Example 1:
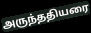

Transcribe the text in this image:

அருந்ததியரை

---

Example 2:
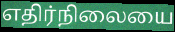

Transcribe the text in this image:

எதிர்நிலையை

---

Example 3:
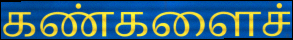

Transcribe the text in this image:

கண்களைச்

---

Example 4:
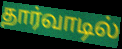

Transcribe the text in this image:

தார்வாடில்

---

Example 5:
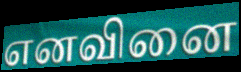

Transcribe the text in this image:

எனவினை